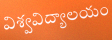
విశ్వవిద్యాలయం